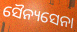
ସୈନ୍ୟସେନା